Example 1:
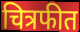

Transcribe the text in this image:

चित्रफीत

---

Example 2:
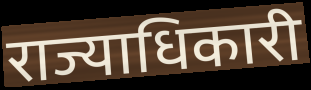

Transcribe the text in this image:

राज्याधिकारी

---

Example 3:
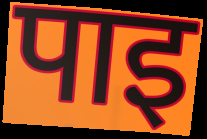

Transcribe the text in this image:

पाइ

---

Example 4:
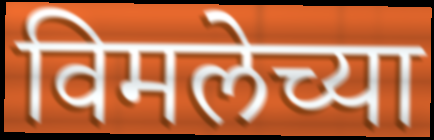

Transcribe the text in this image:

विमलेच्या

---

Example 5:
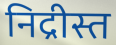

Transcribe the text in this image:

निद्रीस्त